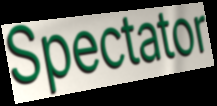
Spectator